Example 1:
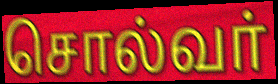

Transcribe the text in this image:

சொல்வர்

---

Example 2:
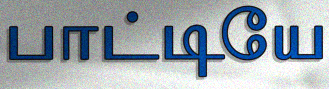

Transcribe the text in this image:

பாட்டியே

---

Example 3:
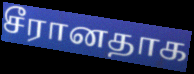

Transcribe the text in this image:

சீரானதாக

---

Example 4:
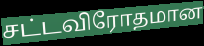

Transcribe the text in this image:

சட்டவிரோதமான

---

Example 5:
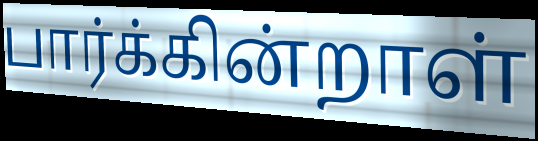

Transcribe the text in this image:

பார்க்கின்றாள்